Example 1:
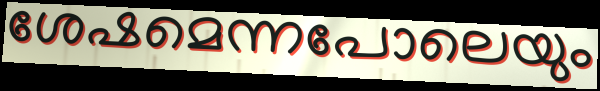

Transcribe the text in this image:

ശേഷമെന്നപോലെയും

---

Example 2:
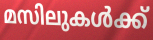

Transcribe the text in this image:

മസിലുകൾക്ക്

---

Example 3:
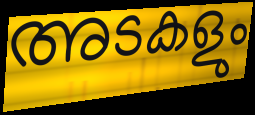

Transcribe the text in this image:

അടകളും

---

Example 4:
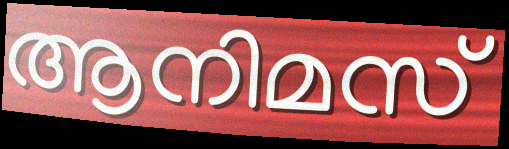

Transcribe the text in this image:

ആനിമസ്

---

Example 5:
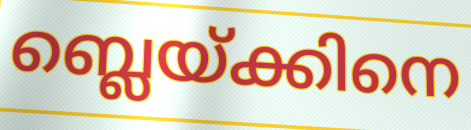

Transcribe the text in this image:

ബ്ലെയ്ക്കിനെ